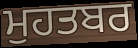
ਮੁਹਤਬਰ